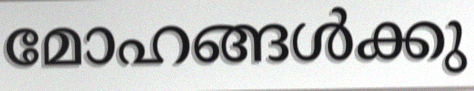
മോഹങ്ങൾക്കു